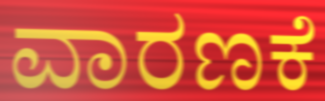
ವಾರಣಕೆ